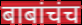
बाबांचंच